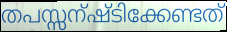
തപസ്സന്ഷ്ടിക്കേണ്ടത്